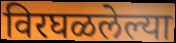
विरघळलेल्या